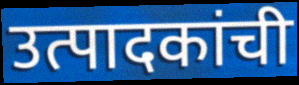
उत्पादकांची